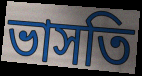
ভাসতি